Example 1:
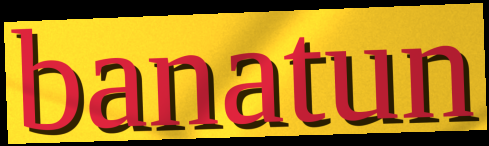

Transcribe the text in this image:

banatun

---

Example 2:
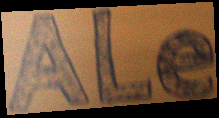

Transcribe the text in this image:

ALe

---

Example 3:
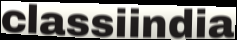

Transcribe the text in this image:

classiindia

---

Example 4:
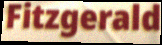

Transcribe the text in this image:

Fitzgerald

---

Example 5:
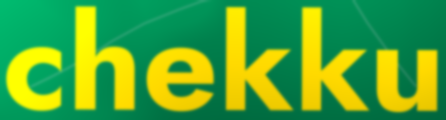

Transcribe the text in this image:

chekku